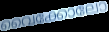
വൈക്കോലോ